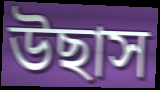
উছাস